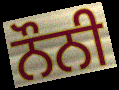
ਨੌਨੀ